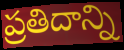
ప్రతిదాన్ని